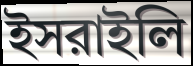
ইসরাইলি